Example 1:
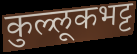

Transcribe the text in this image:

कुल्लूकभट्ट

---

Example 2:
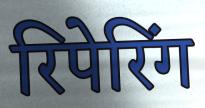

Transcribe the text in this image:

रिपेरिंग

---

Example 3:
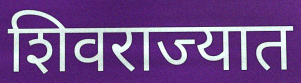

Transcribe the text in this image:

शिवराज्यात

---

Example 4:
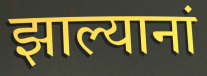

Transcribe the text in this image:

झाल्यानां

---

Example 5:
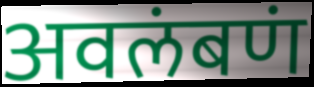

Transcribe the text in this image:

अवलंबणं